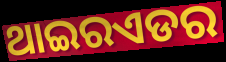
ଥାଇରଏଡର